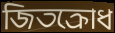
জিতক্রোধ